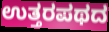
ಉತ್ತರಪಥದ